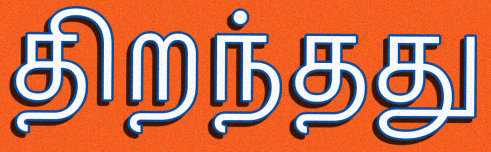
திறந்தது